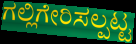
ಗಲ್ಲಿಗೇರಿಸಲ್ಪಟ್ಟ